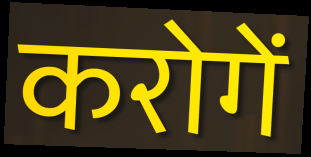
करोगें